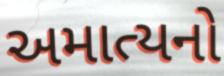
અમાત્યનો